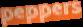
peppers